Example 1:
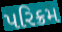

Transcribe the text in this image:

પરિક્રમ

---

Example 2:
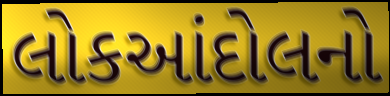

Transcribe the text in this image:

લોકઆંદોલનો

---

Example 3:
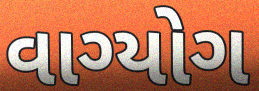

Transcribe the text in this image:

વાગ્યોગ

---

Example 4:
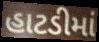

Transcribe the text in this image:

હાટડીમાં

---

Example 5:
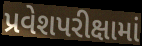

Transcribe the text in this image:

પ્રવેશપરીક્ષામાં